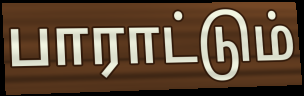
பாராட்டும்